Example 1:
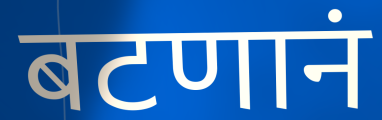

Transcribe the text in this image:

बटणानं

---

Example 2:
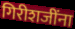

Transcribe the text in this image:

गिरीशजींना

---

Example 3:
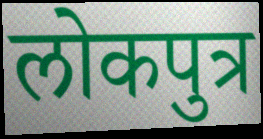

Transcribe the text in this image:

लोकपुत्र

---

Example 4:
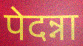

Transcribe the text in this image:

पेदन्ना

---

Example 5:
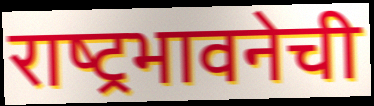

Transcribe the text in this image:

राष्ट्रभावनेची